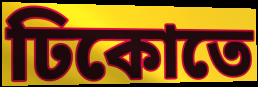
ঢিকোতে